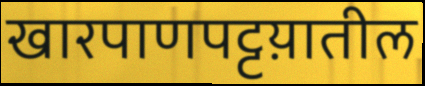
खारपाणपट्टय़ातील